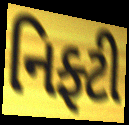
નિફ્ટી